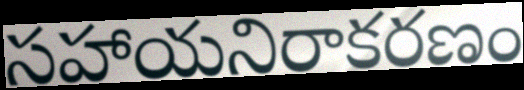
సహాయనిరాకరణం